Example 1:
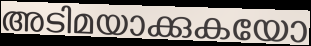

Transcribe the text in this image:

അടിമയാക്കുകയോ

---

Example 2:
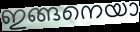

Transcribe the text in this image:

ഇങ്ങനെയാ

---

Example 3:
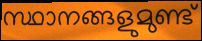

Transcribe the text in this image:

സ്ഥാനങ്ങളുമുണ്ട്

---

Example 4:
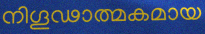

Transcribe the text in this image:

നിഗൂഢാത്മകമായ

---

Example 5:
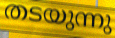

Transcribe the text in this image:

തടയുന്നു